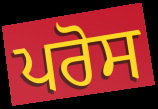
ਪਰੋਸ